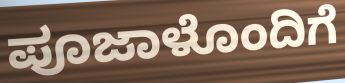
ಪೂಜಾಳೊಂದಿಗೆ